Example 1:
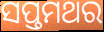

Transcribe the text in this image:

ସପ୍ତମଥର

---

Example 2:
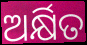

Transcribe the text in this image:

ଅର୍କ୍ଷିତ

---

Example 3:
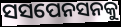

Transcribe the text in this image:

ସସପେନସନକୁ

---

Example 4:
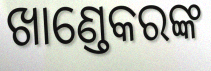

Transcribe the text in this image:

ଖାଣ୍ଡେକରଙ୍କ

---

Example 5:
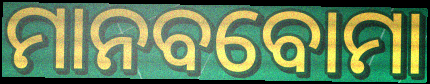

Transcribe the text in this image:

ମାନବବୋମା